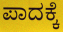
ಪಾದಕ್ಕೆ